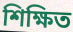
শিক্ষিত